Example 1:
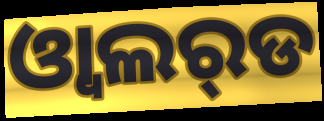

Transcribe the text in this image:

ଓ୍ବାଲର୍‌ଡ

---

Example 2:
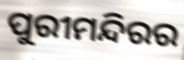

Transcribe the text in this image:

ପୁରୀମନ୍ଦିରର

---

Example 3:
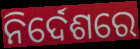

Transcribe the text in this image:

ନିର୍ଦେଶରେ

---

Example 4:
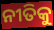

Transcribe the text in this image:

ନୀତିକୁ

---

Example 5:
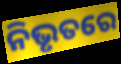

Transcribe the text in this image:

ନିଭୃତରେ